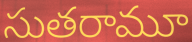
సుతరామూ